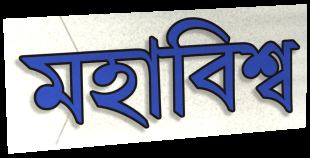
মহাবিশ্ব